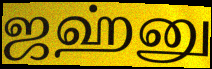
ஜஹ்னு